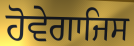
ਹੋਵੇਗਾਜਿਸ